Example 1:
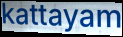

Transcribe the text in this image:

kattayam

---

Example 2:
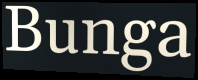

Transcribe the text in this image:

Bunga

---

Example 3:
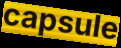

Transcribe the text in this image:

capsule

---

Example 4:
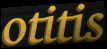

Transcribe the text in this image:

otitis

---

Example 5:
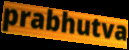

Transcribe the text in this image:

prabhutva